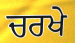
ਚਰਖੇ